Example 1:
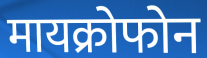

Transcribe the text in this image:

मायक्रोफोन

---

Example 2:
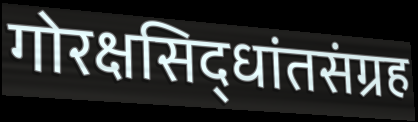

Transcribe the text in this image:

गोरक्षसिद्धांतसंग्रह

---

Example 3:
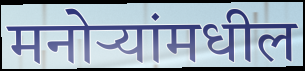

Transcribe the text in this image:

मनोऱ्यांमधील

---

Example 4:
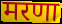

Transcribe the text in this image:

मरणा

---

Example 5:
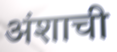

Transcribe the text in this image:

अंशाची